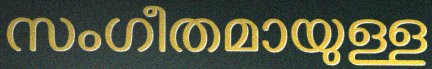
സംഗീതമായുള്ള